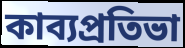
কাব্যপ্রতিভা